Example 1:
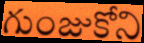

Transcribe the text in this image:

గుంజుకోని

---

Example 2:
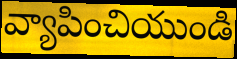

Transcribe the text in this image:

వ్యాపించియుండి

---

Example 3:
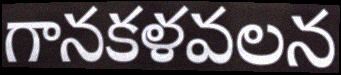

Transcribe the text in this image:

గానకళవలన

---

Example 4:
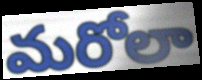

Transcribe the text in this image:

మరోలా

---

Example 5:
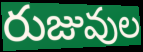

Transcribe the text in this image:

రుజువుల